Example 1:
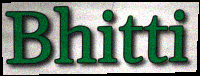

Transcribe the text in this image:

Bhitti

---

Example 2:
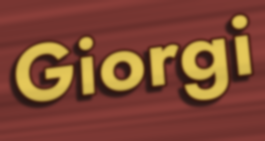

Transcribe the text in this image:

Giorgi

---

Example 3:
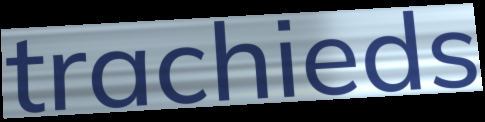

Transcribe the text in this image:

trachieds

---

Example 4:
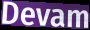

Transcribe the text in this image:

Devam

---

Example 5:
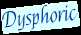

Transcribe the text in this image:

Dysphoric